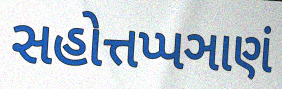
સહોત્તપ્પઞાણં